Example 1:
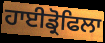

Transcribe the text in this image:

ਹਾਈਡ੍ਰੋਫਿਲਾ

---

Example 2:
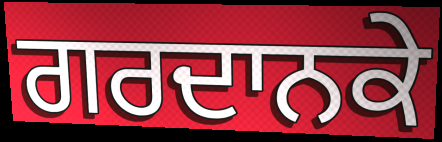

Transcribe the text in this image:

ਗਰਦਾਨਕੇ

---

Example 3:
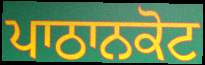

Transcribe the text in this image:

ਪਾਠਾਨਕੋਟ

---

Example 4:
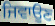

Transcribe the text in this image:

ਜਿਵਾਉਣ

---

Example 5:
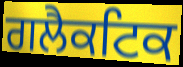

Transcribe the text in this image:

ਗਲੈਕਟਿਕ